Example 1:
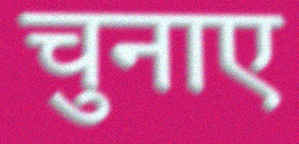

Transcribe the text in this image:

चुनाए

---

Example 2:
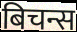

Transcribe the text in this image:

बिचन्स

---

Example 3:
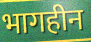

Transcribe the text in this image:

भागहीन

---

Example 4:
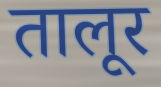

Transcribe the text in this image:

तालूर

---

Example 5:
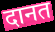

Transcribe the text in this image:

दानत